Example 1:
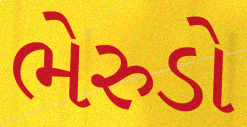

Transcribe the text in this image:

ભેરુડો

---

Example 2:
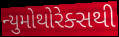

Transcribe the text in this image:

ન્યુમોથોરેક્સથી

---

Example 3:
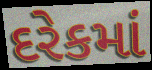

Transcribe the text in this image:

દરેકમાં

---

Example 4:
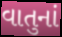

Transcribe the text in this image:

વાતુનાં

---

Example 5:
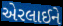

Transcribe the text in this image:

એરલાઈને